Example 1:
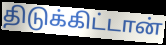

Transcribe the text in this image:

திடுக்கிட்டான்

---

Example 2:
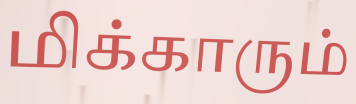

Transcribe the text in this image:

மிக்காரும்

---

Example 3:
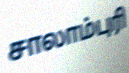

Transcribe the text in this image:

சாலாம்புரி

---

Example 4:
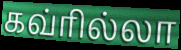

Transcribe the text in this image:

கவ்ரில்லா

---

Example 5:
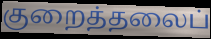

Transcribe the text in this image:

குறைத்தலைப்